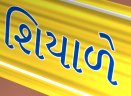
શિયાળે